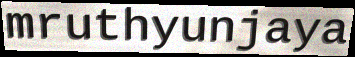
mruthyunjaya